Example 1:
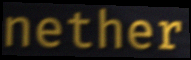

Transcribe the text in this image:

nether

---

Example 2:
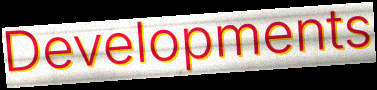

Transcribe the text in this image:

Developments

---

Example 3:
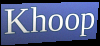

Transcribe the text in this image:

Khoop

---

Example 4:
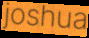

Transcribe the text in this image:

joshua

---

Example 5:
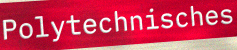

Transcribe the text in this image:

Polytechnisches